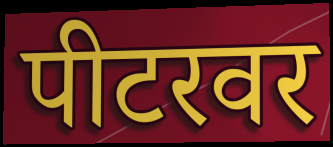
पीटरवर